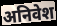
अनिवेश